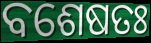
ବଶେଷତଃ